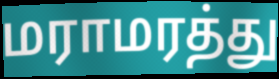
மராமரத்து